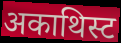
अकाथिस्ट